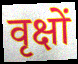
वृक्षों